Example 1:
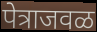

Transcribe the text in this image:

पेत्राजवळ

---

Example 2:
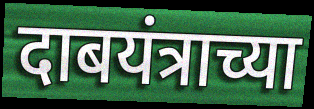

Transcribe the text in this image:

दाबयंत्राच्या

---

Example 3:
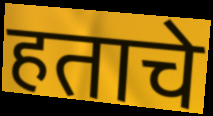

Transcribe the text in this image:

हताचे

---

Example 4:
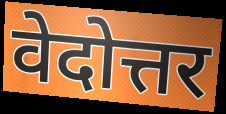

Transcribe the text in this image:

वेदोत्तर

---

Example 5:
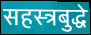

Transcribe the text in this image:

सहस्त्रबुद्धे